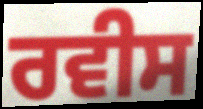
ਰਵੀਸ